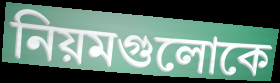
নিয়মগুলোকে